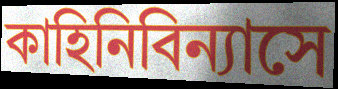
কাহিনিবিন্যাসে